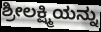
ಶ್ರೀಲಕ್ಷ್ಮಿಯನ್ನು